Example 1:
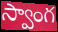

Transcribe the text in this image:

స్వాంగ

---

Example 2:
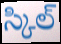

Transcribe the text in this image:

స్కిల్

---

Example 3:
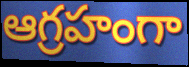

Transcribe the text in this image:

ఆగ్రహంగా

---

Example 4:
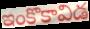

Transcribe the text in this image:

ఇంకొకావిడ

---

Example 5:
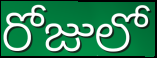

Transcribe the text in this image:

రోజులో